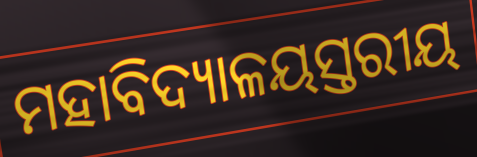
ମହାବିଦ୍ୟାଳୟସ୍ତରୀୟ